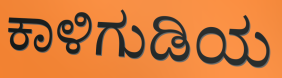
ಕಾಳಿಗುಡಿಯ